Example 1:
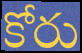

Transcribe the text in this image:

కోరు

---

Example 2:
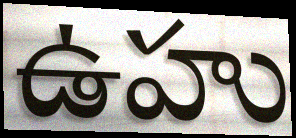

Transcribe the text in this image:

ఉహు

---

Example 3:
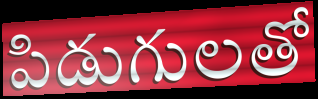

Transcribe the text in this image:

పిడుగులతో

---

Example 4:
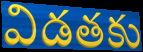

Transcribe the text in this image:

విడతకు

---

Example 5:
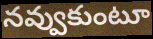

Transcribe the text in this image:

నవ్వుకుంటూ